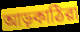
আড়কাঠিরা